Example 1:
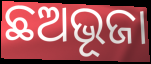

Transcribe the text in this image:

ଛଅଭୂଜା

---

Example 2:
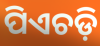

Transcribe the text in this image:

ପିଏଚଡ଼ି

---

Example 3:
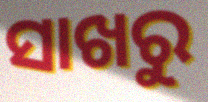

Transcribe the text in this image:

ସାଖରୁ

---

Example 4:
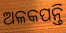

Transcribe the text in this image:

ଅଳକପନ୍ତି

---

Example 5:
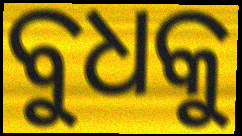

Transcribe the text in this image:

ବୁଧକୁ